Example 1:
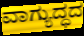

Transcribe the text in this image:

ವಾಗ್ಯುದ್ಧದ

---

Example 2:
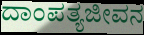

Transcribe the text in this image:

ದಾಂಪತ್ಯಜೀವನ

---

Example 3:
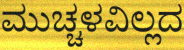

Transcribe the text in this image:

ಮುಚ್ಚಳವಿಲ್ಲದ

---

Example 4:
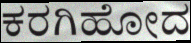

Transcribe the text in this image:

ಕರಗಿಹೋದ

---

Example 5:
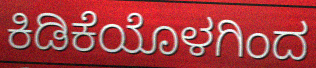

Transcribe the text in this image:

ಕಿಡಿಕೆಯೊಳಗಿಂದ